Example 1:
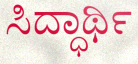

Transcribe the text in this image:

ಸಿದ್ಧಾರ್ಥಿ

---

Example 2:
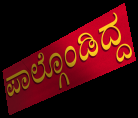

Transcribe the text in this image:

ಪಾಲ್ಗೊಂಡಿದ್ದ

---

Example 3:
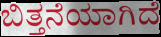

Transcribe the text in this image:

ಬಿತ್ತನೆಯಾಗಿದೆ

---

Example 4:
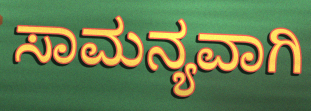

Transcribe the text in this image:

ಸಾಮನ್ಯವಾಗಿ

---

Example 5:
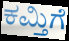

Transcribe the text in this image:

ಕಮ್ತಿಗೆ